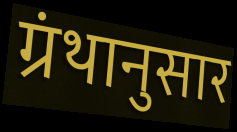
ग्रंथानुसार